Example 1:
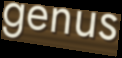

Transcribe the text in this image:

genus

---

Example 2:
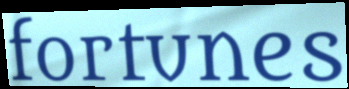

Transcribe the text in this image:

fortunes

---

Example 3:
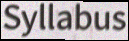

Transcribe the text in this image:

Syllabus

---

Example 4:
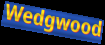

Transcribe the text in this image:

Wedgwood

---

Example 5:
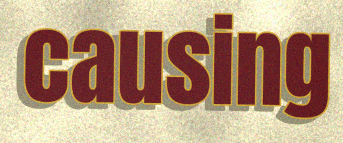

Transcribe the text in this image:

causing